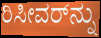
ರಿಸೀವರ್‌ನ್ನು